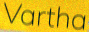
Vartha